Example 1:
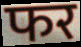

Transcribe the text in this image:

फर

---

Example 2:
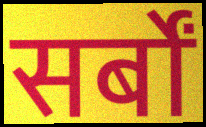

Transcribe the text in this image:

सर्बों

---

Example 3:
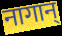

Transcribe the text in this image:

नागान्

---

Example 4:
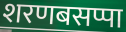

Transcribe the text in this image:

शरणबसप्पा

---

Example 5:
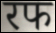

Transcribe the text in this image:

रफ